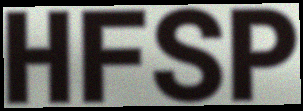
HFSP